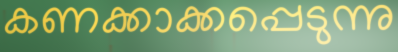
കണക്കാക്കപ്പെടുന്നു